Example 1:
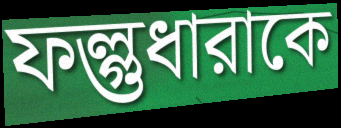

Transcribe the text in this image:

ফল্গুধারাকে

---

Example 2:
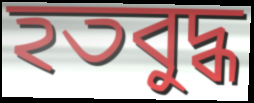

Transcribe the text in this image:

হতবুদ্ধ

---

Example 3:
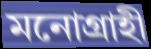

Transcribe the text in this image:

মনোগ্রাহী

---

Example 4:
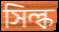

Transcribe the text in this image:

সিল্ক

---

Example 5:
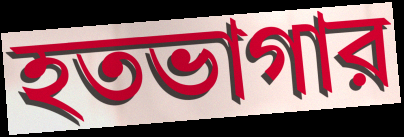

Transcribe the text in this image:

হতভাগার